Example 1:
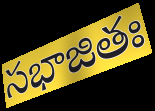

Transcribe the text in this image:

సభాజితః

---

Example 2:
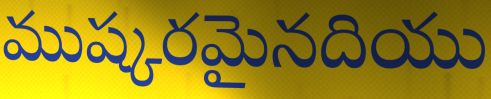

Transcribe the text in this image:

ముష్కరమైనదియు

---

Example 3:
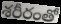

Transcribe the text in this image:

శరీరంతో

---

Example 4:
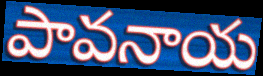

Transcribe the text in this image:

పావనాయ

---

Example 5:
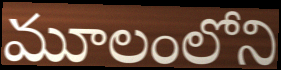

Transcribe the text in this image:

మూలంలోని